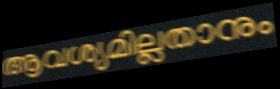
ആവശ്യമില്ലതാനും